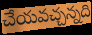
చేయవచ్చన్నది